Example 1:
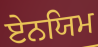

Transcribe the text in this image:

ਏਨਯਿਮ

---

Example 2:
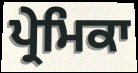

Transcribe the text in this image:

ਪ੍ਰੇਮਿਕਾ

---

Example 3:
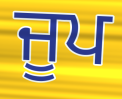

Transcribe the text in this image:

ਜੂਪ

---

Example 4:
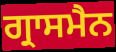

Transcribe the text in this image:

ਗ੍ਰਾਸਮੈਨ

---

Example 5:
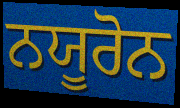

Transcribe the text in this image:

ਨਯੂਰੋਨ